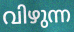
വിഴുന്ന